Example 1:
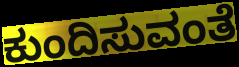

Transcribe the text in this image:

ಕುಂದಿಸುವಂತೆ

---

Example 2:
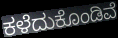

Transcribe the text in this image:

ಕಳೆದುಕೊಂಡಿವೆ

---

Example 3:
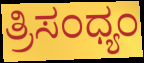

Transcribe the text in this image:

ತ್ರಿಸಂಧ್ಯಂ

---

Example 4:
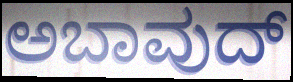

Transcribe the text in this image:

ಅಬಾವುದ್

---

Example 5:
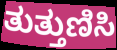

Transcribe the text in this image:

ತುತ್ತುಣಿಸಿ